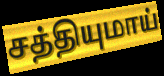
சத்தியுமாய்